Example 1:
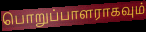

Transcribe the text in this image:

பொறுப்பாளராகவும்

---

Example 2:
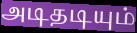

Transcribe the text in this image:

அடிதடியும்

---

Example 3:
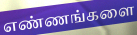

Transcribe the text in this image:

எண்ணங்களை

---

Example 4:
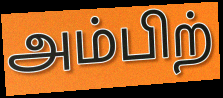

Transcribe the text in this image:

அம்பிற்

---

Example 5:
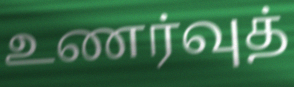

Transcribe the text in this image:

உணர்வுத்